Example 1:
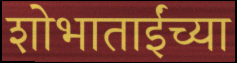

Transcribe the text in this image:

शोभाताईंच्या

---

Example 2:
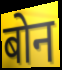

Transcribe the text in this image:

बोन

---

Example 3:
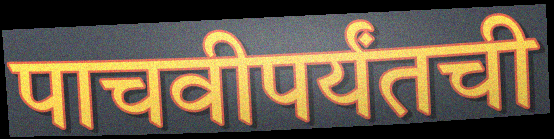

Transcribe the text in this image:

पाचवीपर्यंतची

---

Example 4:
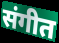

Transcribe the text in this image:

संगीत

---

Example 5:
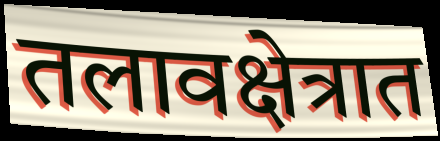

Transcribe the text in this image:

तलावक्षेत्रात